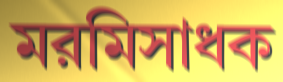
মরমিসাধক